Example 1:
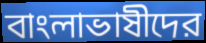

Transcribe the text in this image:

বাংলাভাষীদের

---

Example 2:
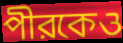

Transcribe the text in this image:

পীরকেও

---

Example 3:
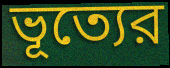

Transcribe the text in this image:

ভূত্যের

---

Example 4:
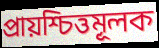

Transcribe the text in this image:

প্রায়শ্চিত্তমূলক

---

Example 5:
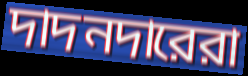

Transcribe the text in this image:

দাদনদারেরা